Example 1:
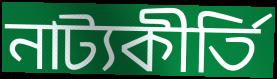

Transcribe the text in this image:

নাট্যকীর্তি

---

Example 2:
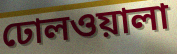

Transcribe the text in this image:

ঢোলওয়ালা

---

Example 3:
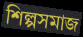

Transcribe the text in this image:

শিল্পসমাজ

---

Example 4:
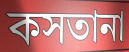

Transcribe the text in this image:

কসতানা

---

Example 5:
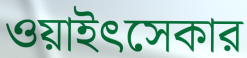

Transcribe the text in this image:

ওয়াইৎসেকার